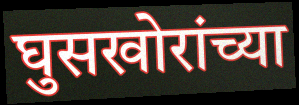
घुसखोरांच्या